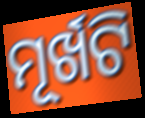
ମୂର୍ଖଟି